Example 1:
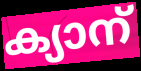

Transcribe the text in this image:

ക്യാന്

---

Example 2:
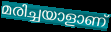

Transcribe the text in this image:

മരിച്ചയാളാണ്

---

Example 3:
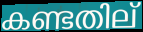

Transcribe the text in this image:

കണ്ടതില്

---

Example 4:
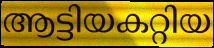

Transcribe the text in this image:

ആട്ടിയകറ്റിയ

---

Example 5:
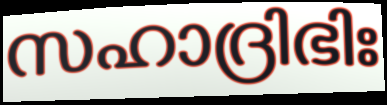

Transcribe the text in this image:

സഹാദ്രിഭിഃ